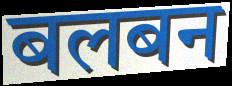
बलबन